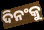
ଦିନଂକୁ